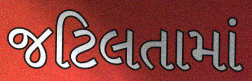
જટિલતામાં